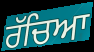
ਰੱਚਿਆ